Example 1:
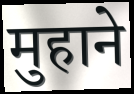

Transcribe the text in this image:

मुहाने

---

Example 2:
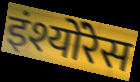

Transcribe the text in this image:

इंश्योंरेस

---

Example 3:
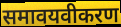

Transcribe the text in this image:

समावयवीकरण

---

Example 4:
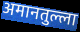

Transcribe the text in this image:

अमानतुल्ला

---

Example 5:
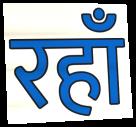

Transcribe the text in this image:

रहाँ